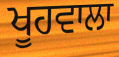
ਖੂਹਵਾਲਾ